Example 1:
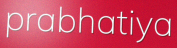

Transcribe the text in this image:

prabhatiya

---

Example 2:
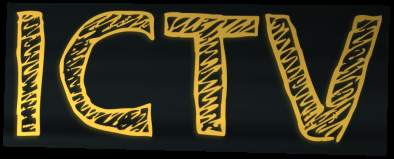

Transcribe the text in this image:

ICTV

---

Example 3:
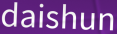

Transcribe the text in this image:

daishun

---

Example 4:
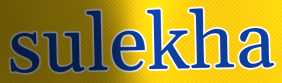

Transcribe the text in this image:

sulekha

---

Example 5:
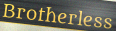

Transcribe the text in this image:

Brotherless